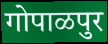
गोपाळपुर